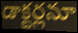
డాక్టర్లనూ